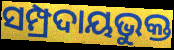
ସମ୍ପ୍ରଦାୟଭୁକ୍ତ